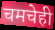
चमचेही